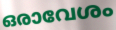
ഒരാവേശം